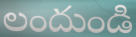
లందుండి